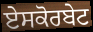
ਏਸਕੋਰਬੇਟ